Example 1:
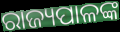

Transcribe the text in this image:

ରାଜ୍ୟପାଳଙ୍କ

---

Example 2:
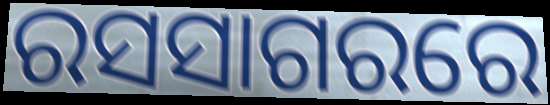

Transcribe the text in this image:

ରସସାଗରରେ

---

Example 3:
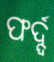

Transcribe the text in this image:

ଫର୍ଦ୍ଦ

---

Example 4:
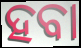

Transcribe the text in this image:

ହବା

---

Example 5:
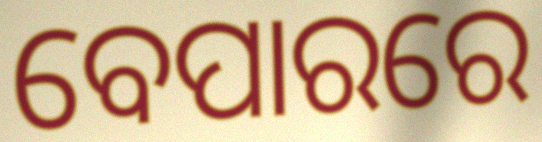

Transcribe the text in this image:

ବେପାରରେ